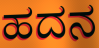
ಹದನ